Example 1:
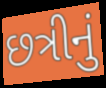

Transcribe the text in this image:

છત્રીનું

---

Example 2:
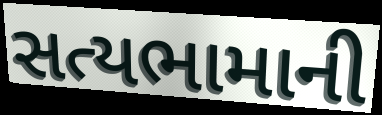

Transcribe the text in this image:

સત્યભામાની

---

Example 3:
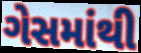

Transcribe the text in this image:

ગેસમાંથી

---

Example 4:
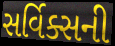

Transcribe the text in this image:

સર્વિક્સની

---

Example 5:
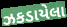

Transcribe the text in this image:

ઝકડાયેલા